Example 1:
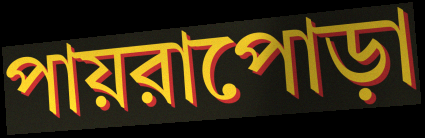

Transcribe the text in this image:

পায়রাপোড়া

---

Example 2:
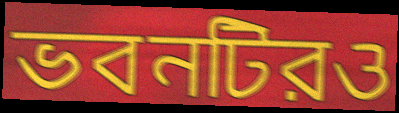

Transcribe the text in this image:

ভবনটিরও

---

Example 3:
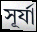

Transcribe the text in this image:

সূর্যা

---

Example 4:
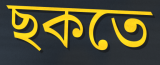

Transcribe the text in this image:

ছকতে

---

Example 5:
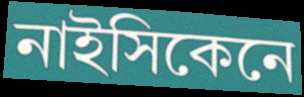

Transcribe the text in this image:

নাইসিকেনে